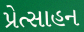
પ્રેત્સાહન